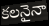
కలనైనా